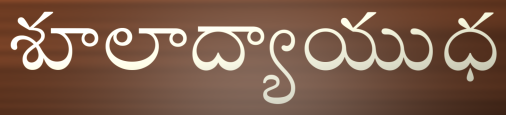
శూలాద్యాయుధ